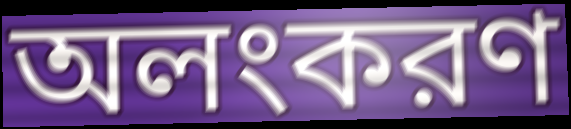
অলংকরণ